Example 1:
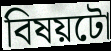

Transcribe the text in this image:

বিষয়টো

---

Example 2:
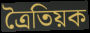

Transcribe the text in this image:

ত্ৰৈতিয়ক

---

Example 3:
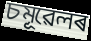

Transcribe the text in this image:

চমূৱেলৰ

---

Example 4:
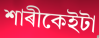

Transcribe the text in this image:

শাৰীকেইটা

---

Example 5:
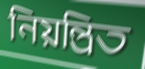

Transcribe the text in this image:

নিয়ন্ত্ৰিত